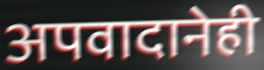
अपवादानेही